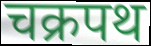
चक्रपथ